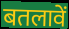
बतलावें